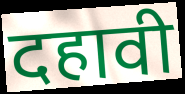
दहावी